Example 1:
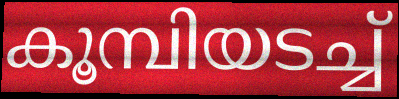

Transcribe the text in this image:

കൂമ്പിയടച്ച്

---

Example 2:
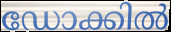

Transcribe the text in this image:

ഡോക്കിൽ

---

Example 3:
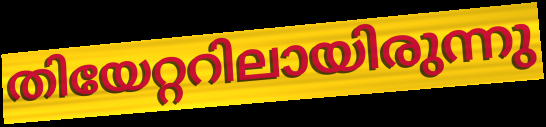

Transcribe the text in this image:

തിയേറ്ററിലായിരുന്നു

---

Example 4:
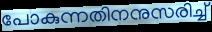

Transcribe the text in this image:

പോകുന്നതിനനുസരിച്ച്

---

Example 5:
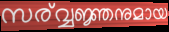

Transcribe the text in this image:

സര്വ്വജ്ഞനുമായ